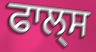
ਫਾਲ੍ਸ